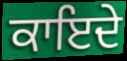
ਕਾਇਦੇ